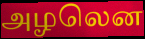
அழலென